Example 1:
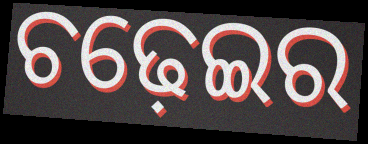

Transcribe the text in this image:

ଚଢ଼େଇର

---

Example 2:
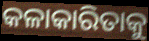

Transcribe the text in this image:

କଳାକାରିତାକୁ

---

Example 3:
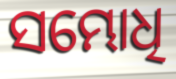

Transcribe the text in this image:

ସମ୍ଭୋଧି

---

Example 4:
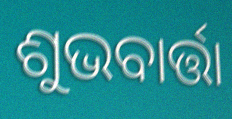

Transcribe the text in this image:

ଶୁଭବାର୍ତ୍ତା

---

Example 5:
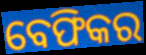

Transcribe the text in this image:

ବେଫିକର